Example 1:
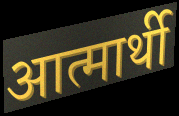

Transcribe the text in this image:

आत्मार्थी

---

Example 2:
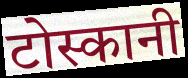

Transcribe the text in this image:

टोस्कानी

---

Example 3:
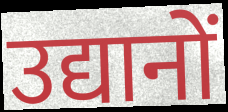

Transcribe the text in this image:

उद्यानों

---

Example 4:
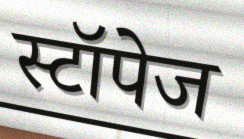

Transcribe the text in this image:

स्टॉपेज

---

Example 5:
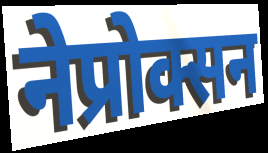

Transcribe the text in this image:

नेप्रोक्सन